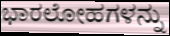
ಭಾರಲೋಹಗಳನ್ನು